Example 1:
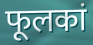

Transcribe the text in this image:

फूलकां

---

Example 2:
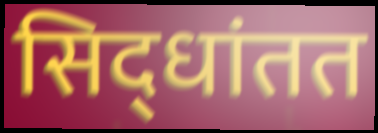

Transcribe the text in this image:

सिद्धांतत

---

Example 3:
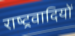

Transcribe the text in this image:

राष्ट्रवादियों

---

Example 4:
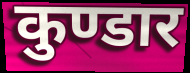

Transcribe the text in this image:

कुण्डार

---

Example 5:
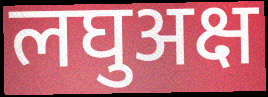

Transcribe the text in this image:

लघुअक्ष